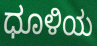
ಧೂಳಿಯ